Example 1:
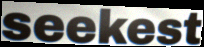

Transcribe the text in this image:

seekest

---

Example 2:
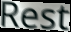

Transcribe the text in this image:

Rest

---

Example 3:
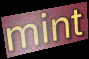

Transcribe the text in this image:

mint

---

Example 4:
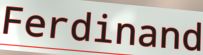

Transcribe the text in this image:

Ferdinand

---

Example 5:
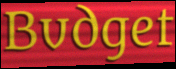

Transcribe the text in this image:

Budget